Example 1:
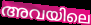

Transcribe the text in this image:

അവയിലെ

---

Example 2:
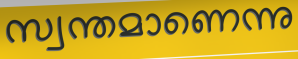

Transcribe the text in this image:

സ്വന്തമാണെന്നു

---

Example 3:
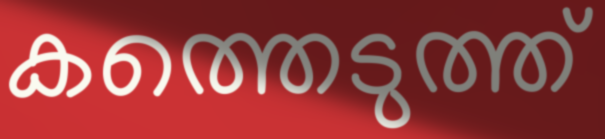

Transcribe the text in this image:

കത്തെടുത്ത്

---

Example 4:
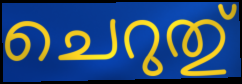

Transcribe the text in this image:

ചെറുതു്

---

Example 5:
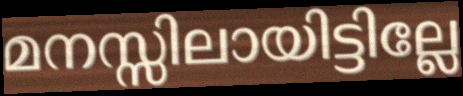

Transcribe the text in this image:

മനസ്സിലായിട്ടില്ലേ